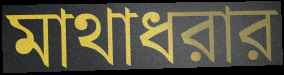
মাথাধরার